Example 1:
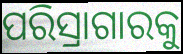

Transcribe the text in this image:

ପରିସ୍ରାଗାରକୁ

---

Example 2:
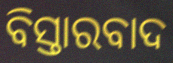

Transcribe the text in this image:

ବିସ୍ତାରବାଦ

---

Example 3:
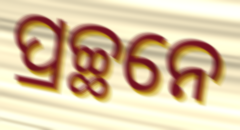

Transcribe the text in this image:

ପ୍ରଚ୍ଛନେ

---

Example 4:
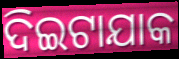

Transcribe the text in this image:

ଦିଇଟାଯାକ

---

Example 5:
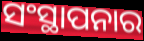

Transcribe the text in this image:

ସଂସ୍ଥାପନାର